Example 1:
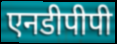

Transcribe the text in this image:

एनडीपीपी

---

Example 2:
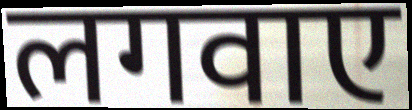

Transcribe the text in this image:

लगवाए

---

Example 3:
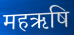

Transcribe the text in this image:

महऋषि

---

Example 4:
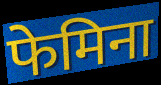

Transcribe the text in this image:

फेमिना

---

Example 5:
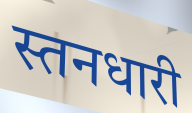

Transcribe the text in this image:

स्‍तनधारी